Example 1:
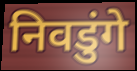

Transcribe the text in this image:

निवडुंगे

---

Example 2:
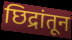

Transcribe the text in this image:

छिद्रांतून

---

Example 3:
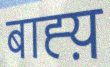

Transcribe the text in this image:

बाह्य़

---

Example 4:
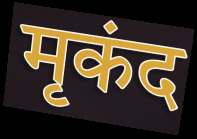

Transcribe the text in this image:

मृकंद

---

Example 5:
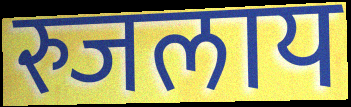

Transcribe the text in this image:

रुजलाय